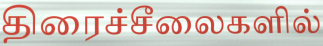
திரைச்சீலைகளில்